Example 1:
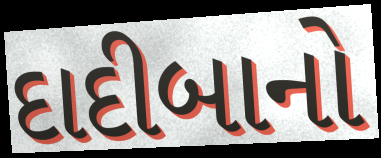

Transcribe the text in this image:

દાદીબાનો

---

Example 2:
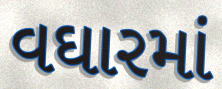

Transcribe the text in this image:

વઘારમાં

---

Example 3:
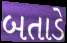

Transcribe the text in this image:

બતાડે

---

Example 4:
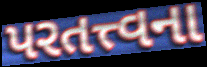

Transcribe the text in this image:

પરતત્ત્વના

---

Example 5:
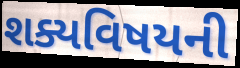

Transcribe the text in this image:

શક્યવિષયની